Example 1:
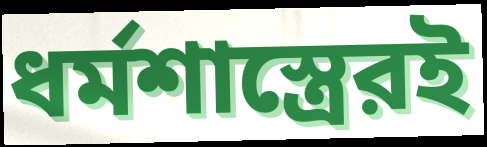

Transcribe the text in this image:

ধর্মশাস্ত্রেরই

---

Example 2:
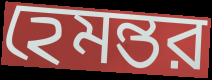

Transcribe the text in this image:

হেমন্তর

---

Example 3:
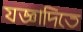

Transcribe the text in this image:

যজ্ঞাদিতে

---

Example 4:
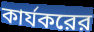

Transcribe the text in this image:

কার্যকরের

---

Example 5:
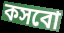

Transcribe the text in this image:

কসবো